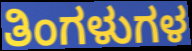
ತಿಂಗಳುಗಳ